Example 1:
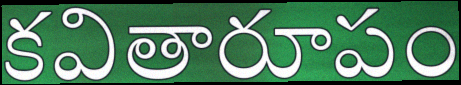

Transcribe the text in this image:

కవితారూపం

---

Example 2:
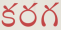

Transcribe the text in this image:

కరగ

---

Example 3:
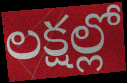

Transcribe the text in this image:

లక్షల్లో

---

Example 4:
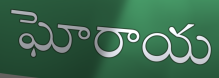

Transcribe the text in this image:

ఘోరాయ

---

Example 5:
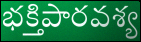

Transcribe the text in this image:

భక్తిపారవశ్య